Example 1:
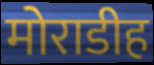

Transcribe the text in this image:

मोराडीह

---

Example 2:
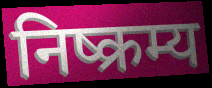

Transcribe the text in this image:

निष्क्रम्य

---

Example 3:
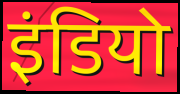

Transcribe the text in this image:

इंडियो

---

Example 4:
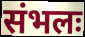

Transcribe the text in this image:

संभलः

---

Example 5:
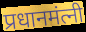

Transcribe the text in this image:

प्रधानमंत्नी